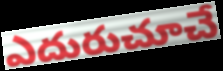
ఎదురుచూచే